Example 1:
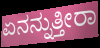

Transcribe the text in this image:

ಏನನ್ನುತ್ತೀರಾ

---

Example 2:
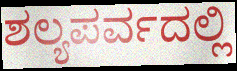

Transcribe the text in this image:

ಶಲ್ಯಪರ್ವದಲ್ಲಿ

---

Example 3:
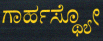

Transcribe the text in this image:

ಗಾರ್ಹಸ್ಥ್ಯೋ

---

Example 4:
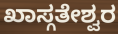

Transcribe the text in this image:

ಖಾಸ್ಗತೇಶ್ವರ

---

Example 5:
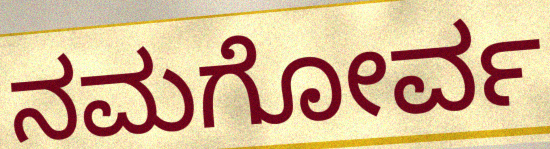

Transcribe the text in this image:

ನಮಗೋರ್ವ